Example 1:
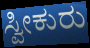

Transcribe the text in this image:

ಸ್ವೀಕುರು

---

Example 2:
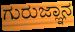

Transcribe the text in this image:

ಗುರುಜ್ಞಾನ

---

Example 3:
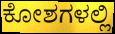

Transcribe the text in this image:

ಕೋಶಗಳಲ್ಲಿ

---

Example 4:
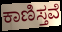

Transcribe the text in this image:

ಕಾಣಿಸ್ತವೆ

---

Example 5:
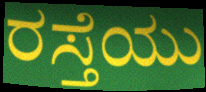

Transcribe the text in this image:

ರಸ್ತೆಯು